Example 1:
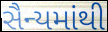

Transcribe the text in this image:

સૈન્યમાંથી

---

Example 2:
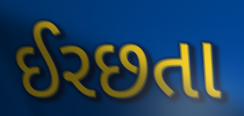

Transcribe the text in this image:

ઈરછતા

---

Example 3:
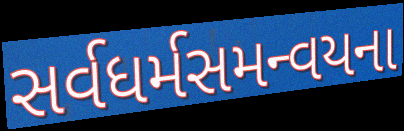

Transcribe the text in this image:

સર્વધર્મસમન્વયના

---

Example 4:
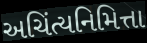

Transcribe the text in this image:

અચિંત્યનિમિત્તા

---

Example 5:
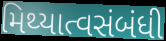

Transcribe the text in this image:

મિથ્યાત્વસંબંધી